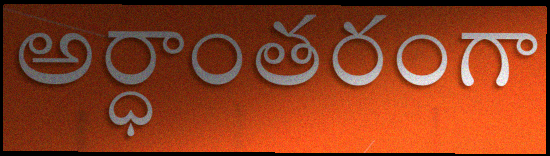
అర్ధాంతరంగా